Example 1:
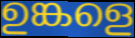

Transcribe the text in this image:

ഉങ്കളെ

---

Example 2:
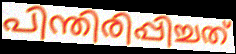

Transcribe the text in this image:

പിന്തിരിപ്പിച്ചത്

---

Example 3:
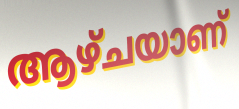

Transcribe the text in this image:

ആഴ്ചയാണ്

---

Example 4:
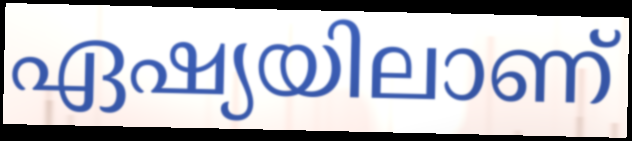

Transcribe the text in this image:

ഏഷ്യയിലാണ്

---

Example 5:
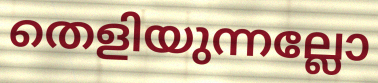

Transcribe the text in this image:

തെളിയുന്നല്ലോ